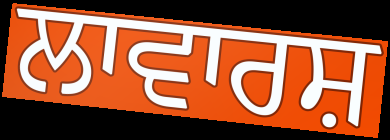
ਲਾਵਾਰਸ਼